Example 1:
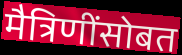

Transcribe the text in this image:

मैत्रिणींसोबत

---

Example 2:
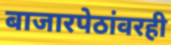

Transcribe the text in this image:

बाजारपेठांवरही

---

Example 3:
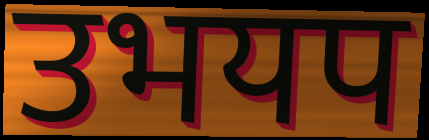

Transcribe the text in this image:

उभयप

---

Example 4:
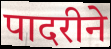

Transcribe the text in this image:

पादरीने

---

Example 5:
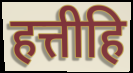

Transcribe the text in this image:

हत्तीहि